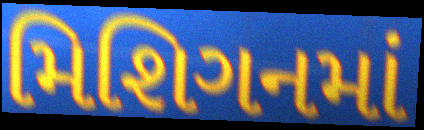
મિશિગનમાં